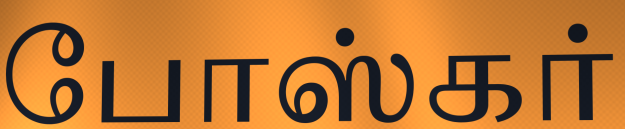
போஸ்கர்